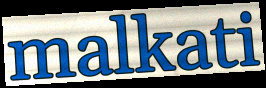
malkati